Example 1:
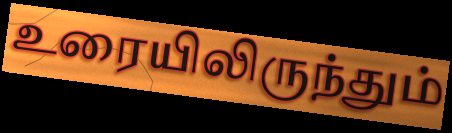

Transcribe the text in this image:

உரையிலிருந்தும்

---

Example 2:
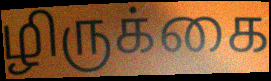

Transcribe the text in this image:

ழிருக்கை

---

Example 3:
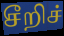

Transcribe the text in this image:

சீறிச்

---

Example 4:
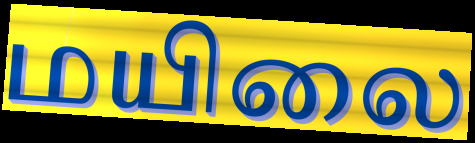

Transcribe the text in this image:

மயிலை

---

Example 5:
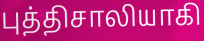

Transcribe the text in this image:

புத்திசாலியாகி